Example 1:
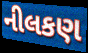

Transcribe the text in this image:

નીલકણ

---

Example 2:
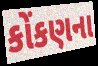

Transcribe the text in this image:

કોંકણના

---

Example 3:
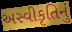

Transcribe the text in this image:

અસ્વીકૃતિનું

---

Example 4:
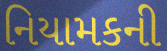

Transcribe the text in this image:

નિયામકની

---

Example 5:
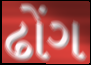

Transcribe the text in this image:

ઢોંગ